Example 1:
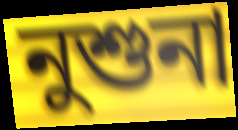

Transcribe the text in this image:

নুশুনা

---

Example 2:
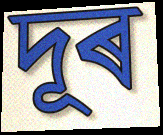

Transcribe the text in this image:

দূৰ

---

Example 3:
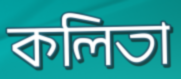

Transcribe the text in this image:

কলিতা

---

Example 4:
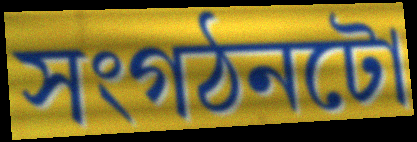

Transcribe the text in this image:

সংগঠনটো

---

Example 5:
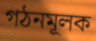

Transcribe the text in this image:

গঠনমূলক